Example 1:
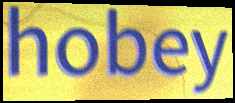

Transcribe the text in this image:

hobey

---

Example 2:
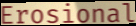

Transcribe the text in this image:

Erosional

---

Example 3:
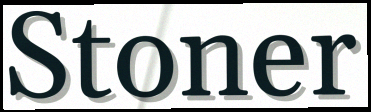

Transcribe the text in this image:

Stoner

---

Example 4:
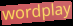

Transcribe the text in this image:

wordplay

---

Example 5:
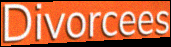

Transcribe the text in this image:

Divorcees